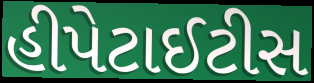
હીપેટાઈટીસ